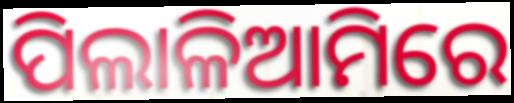
ପିଲାଳିଆମିରେ